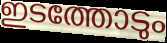
ഇടത്തോടും